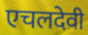
एचलदेवी